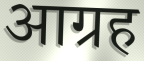
आग्रह